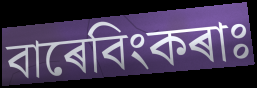
বাৰেবিংকৰাঃ